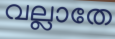
വല്ലാതേ